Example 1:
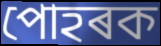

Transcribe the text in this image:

পোহৰক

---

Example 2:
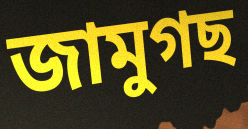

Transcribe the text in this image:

জামুগছ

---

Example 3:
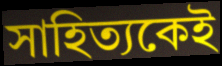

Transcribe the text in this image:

সাহিত্য়কেই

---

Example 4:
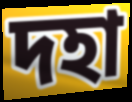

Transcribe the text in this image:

দহা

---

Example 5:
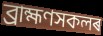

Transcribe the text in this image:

ব্ৰাহ্মণসকলৰ